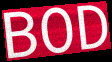
BOD